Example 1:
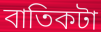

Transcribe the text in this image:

বাতিকটা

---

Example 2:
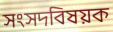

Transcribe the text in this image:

সংসদবিষয়ক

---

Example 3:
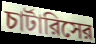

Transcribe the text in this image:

চার্টারিসের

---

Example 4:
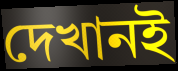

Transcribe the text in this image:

দেখানই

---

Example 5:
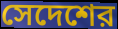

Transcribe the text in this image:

সেদেশের